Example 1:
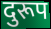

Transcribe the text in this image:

दुरूप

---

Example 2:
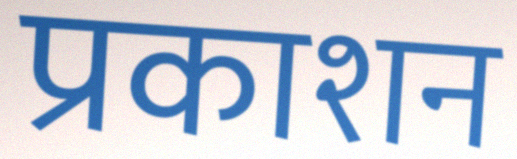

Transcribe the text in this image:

प्रकाशन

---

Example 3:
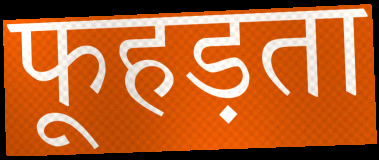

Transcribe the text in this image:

फूहड़ता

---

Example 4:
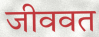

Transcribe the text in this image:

जीववत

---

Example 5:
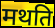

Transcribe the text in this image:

मथति